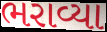
ભરાવ્યા